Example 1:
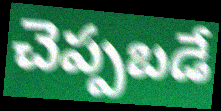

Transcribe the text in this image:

చెప్పబడే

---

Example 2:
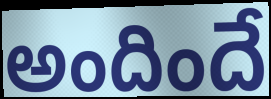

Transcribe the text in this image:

అందిందే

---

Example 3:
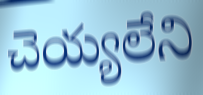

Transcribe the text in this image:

చెయ్యలేని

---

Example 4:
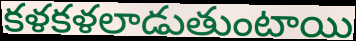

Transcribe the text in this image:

కళకళలాడుతుంటాయి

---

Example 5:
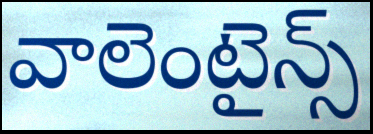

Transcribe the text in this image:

వాలెంటైన్స్